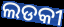
ଲଡକୀ